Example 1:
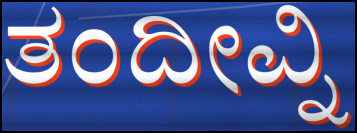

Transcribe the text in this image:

ತಂದೀವ್ನಿ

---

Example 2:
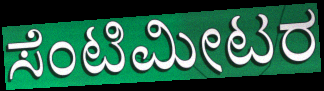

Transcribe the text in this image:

ಸೆಂಟಿಮೀಟರ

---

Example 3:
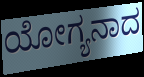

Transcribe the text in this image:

ಯೋಗ್ಯನಾದ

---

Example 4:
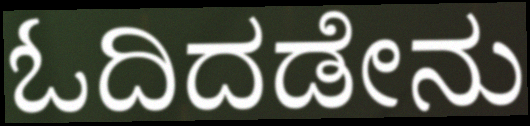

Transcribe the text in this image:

ಓದಿದಡೇನು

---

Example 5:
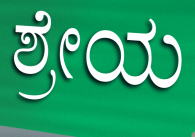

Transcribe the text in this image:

ಶ್ರೇಯ